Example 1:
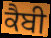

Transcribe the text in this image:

ਕੈਬੀ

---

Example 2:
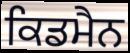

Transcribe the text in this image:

ਕਿਡਮੈਨ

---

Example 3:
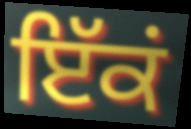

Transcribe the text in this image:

ਇੱਕਂ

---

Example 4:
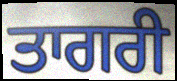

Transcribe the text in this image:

ਤਾਗਰੀ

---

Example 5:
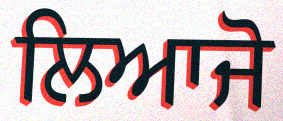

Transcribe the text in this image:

ਲਿਆਜੋ